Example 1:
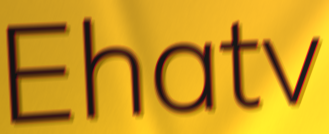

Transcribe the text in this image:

Ehatv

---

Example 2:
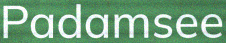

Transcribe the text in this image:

Padamsee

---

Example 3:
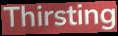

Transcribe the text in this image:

Thirsting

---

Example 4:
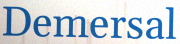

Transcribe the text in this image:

Demersal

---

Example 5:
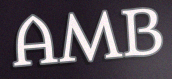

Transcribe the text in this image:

AMB